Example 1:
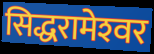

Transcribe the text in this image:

सिद्धरामेश्‍वर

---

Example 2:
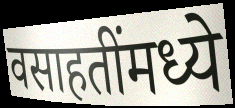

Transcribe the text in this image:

वसाहतींमध्ये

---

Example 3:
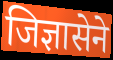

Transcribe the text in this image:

जिज्ञासेने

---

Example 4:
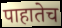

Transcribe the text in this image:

पाहातेच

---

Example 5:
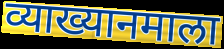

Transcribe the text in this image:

व्याख्यानमाला